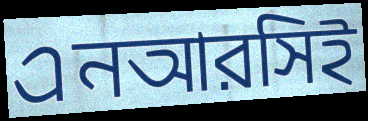
এনআরসিই